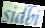
sidbi